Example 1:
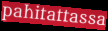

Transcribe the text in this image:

pahitattassa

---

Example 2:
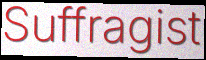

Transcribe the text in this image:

Suffragist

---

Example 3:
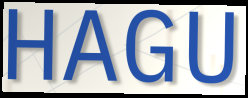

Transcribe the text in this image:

HAGU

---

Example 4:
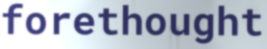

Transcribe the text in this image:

forethought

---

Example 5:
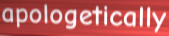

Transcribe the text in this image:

apologetically